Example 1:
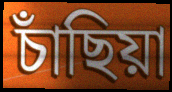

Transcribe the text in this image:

চাঁছিয়া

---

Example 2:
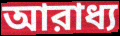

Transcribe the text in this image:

আরাধ্য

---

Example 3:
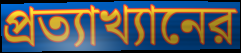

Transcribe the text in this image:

প্রত্যাখ্যানের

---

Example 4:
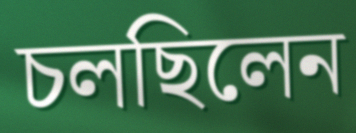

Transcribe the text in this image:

চলছিলেন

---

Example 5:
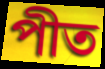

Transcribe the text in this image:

পীত